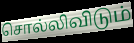
சொல்லிவிடும்